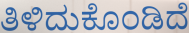
ತಿಳಿದುಕೊಂಡಿದೆ